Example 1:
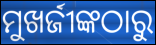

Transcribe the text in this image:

ମୁଖର୍ଜୀଙ୍କଠାରୁ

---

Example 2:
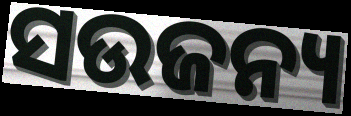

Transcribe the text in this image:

ସଉଜନ୍ୟ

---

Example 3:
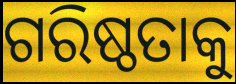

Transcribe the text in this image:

ଗରିଷ୍ଠତାକୁ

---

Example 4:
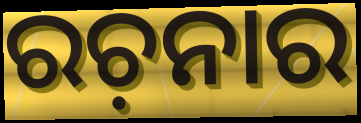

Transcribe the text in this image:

ରଚ଼ନାର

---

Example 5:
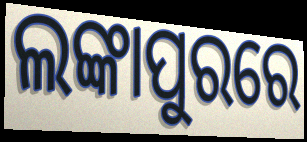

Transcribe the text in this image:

ଲଙ୍କାପୁରରେ